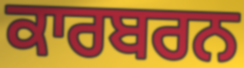
ਕਾਰਬਰਨ